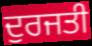
ਦੁਰਜਤੀ